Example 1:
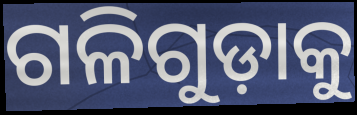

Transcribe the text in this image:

ଗଳିଗୁଡ଼ାକୁ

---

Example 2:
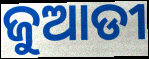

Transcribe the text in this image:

ଜୁଆଡୀ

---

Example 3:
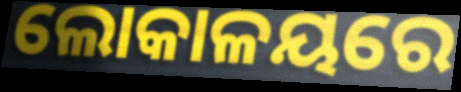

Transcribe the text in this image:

ଲୋକାଳୟରେ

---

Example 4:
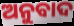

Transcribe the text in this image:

ଅନୁବାଦ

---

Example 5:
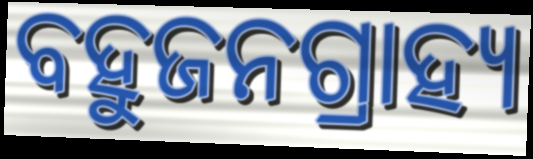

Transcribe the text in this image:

ବହୁଜନଗ୍ରାହ୍ୟ